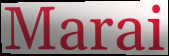
Marai